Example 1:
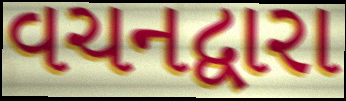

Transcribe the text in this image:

વચનદ્વારા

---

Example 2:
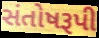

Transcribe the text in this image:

સંતોષરૂપી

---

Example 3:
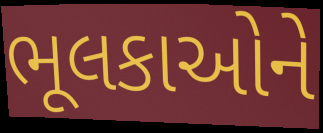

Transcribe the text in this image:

ભૂલકાઓને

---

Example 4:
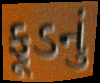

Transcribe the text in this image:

ફૂડનું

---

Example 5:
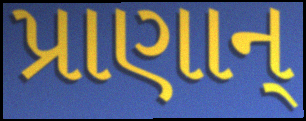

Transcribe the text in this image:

પ્રાણાન્